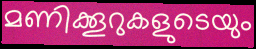
മണിക്കൂറുകളുടെയും